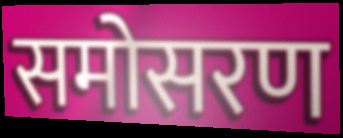
समोसरण